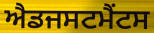
ਐਡਜਸਟਮੈਂਟਸ